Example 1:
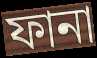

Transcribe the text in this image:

ফানা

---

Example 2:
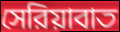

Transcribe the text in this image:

সেরিয়াবাত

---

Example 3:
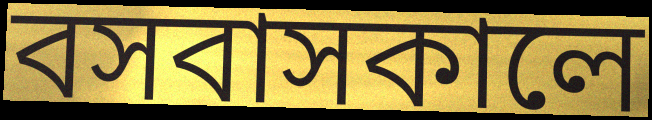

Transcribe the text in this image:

বসবাসকালে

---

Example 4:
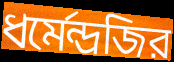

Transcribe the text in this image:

ধর্মেন্দ্রজির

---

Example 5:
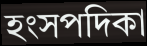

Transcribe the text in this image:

হংসপদিকা